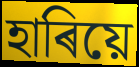
হাৰিয়ে